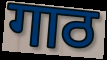
गाठ